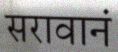
सरावानं